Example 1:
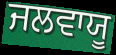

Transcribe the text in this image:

ਜਲਵਾਯੂ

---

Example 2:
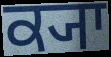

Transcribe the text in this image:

ਕ੍ਯਾ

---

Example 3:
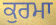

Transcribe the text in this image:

ਕੁਰਮਾ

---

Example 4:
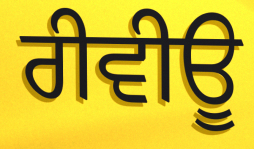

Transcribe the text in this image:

ਰੀਵੀਊ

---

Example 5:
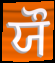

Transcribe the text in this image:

ਯੌ